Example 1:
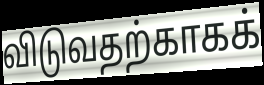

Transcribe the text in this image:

விடுவதற்காகக்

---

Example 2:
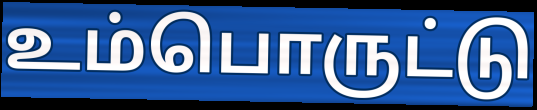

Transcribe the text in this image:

உம்பொருட்டு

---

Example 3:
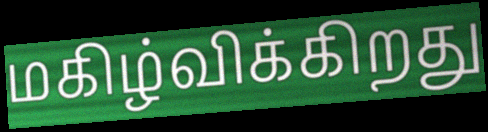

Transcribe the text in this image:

மகிழ்விக்கிறது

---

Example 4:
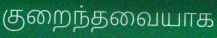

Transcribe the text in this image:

குறைந்தவையாக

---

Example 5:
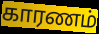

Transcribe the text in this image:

காரணம்